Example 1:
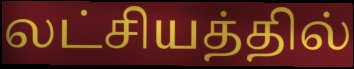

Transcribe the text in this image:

லட்சியத்தில்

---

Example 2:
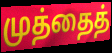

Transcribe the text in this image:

முத்தைத்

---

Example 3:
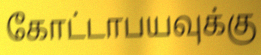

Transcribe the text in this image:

கோட்டாபயவுக்கு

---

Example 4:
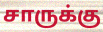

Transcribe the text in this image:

சாருக்கு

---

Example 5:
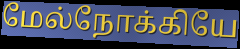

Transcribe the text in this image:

மேல்நோக்கியே